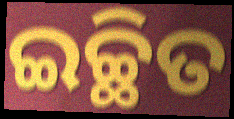
ଇଚ୍ଛିତ